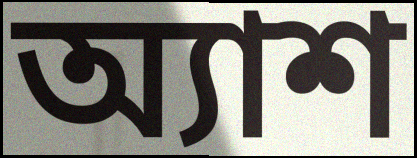
অ্যাশ